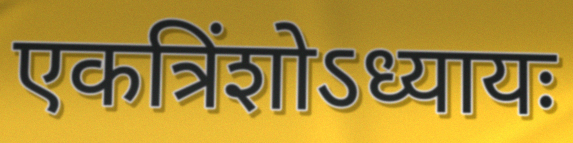
एकत्रिंशोऽध्यायः